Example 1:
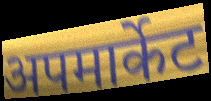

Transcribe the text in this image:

अपमार्केट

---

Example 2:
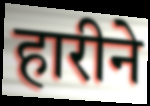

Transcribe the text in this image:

हारीने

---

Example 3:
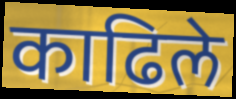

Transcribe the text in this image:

काढिले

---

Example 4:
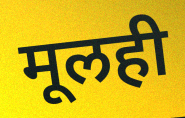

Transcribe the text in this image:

मूलही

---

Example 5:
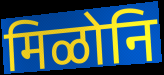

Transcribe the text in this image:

मिळोनि